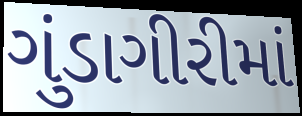
ગુંડાગીરીમાં